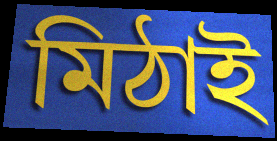
মিঠাই